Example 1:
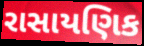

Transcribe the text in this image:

રાસાયણિક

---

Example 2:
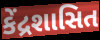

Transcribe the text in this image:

કેંદ્રશાસિત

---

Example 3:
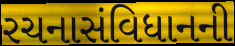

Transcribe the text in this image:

રચનાસંવિધાનની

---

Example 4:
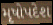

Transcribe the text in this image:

મૃષોપદેશ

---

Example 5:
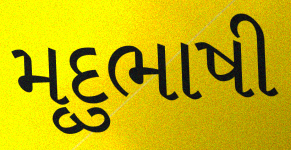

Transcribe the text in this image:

મૃદુભાષી